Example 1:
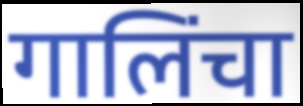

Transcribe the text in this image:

गालिंचा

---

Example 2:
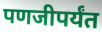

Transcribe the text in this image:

पणजीपर्यंत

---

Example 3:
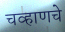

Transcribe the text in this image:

चव्हाणचे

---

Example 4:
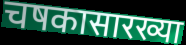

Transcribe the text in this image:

चषकासारख्या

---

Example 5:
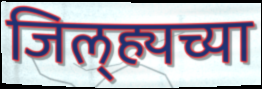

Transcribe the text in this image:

जिल्ह्यच्या